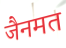
जैनमत